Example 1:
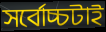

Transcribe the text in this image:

সর্বোচ্চটাই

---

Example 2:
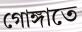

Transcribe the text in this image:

গোঙ্গাতে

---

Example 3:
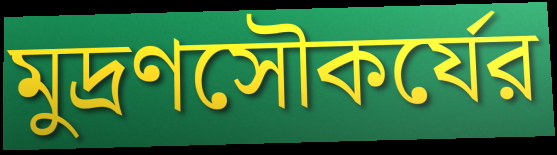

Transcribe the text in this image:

মুদ্রণসৌকর্যের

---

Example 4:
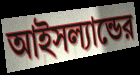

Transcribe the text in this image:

আইসল্যান্ডের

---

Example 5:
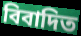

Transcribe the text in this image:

বিবাদিত